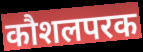
कौशलपरक